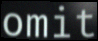
omit